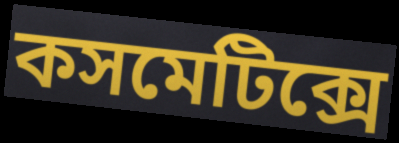
কসমেটিক্সে